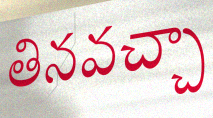
తినవచ్చా